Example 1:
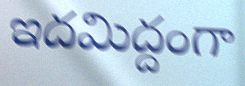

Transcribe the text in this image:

ఇదమిద్దంగా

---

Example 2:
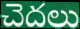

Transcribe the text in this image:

చెదలు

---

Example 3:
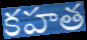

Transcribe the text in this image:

కహత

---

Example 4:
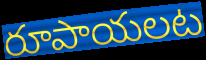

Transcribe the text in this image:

రూపాయలట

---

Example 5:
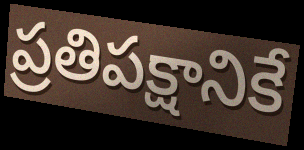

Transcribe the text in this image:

ప్రతిపక్షానికే